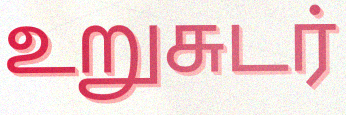
உறுசுடர்